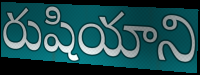
రుషియాని